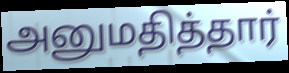
அனுமதித்தார்